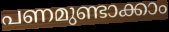
പണമുണ്ടാക്കാം